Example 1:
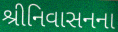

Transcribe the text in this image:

શ્રીનિવાસનના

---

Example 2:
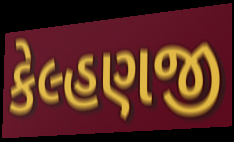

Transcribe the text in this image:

કેલ્હણજી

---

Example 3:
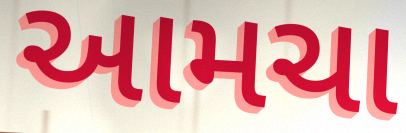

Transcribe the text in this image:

આમચા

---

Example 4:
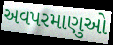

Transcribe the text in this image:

અવપરમાણુઓ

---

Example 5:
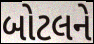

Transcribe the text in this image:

બોટલને